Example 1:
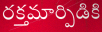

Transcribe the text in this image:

రక్తమార్పిడికి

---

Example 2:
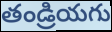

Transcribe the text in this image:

తండ్రియగు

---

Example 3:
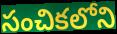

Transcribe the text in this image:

సంచికలోని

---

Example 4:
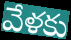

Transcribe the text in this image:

వేళకు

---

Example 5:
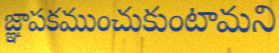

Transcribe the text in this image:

జ్ఞాపకముంచుకుంటామని